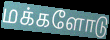
மக்களோடு